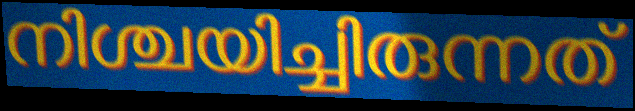
നിശ്ചയിച്ചിരുന്നത്